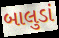
બાલુડાં